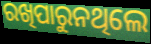
ରଖିପାରୁନଥିଲେ